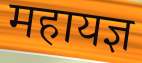
महायज्ञ